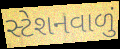
સ્ટેશનવાળું